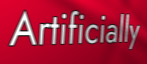
Artificially